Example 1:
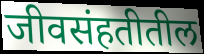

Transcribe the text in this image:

जीवसंहतीतील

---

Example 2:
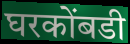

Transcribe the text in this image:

घरकोंबडी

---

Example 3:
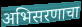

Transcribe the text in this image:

अभिसरणाचा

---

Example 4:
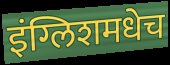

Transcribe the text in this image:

इंग्लिशमधेच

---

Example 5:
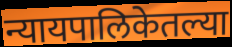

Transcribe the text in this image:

न्यायपालिकेतल्या